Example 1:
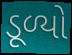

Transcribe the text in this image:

ડૂળ્યો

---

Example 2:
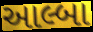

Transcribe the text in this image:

આલ્બા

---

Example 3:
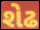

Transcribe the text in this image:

શેઢ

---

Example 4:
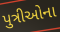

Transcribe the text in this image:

પુત્રીઓના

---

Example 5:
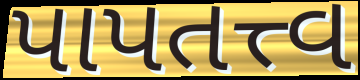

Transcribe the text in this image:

પાપતત્ત્વ